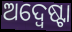
ଅଦ୍ୱେଷ୍ଟା